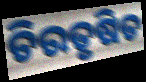
ଚିରତୃଷିତ